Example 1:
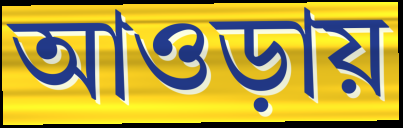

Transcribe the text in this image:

আওড়ায়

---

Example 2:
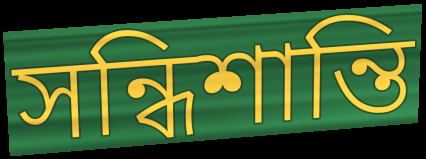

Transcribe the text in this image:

সন্ধিশান্তি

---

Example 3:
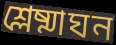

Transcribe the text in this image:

শ্লেষ্মাঘন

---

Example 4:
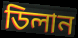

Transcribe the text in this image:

ডিলান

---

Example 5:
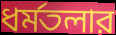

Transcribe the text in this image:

ধর্মতলার